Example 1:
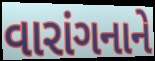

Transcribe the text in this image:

વારાંગનાને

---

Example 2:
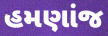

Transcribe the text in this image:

હમણાંજ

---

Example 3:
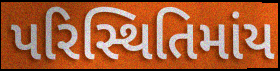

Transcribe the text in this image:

પરિસ્થિતિમાંય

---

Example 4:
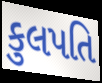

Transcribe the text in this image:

કુલપતિ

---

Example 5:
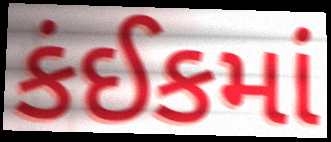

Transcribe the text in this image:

કંઈકમાં